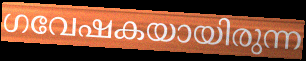
ഗവേഷകയായിരുന്ന